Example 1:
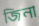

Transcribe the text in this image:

জিনা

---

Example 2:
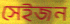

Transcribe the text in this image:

সেইজন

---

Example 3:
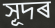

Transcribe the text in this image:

সূদৰ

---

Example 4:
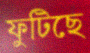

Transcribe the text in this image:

ফুটিছে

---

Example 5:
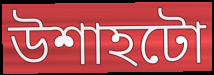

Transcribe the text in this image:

উশাহটো